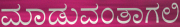
ಮಾಡುವಂತಾಗಲಿ